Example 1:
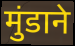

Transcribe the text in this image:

मुंडाने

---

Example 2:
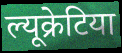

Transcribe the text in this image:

ल्यूक्रेटिया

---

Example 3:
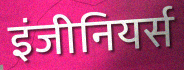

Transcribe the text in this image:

इंजीनियर्स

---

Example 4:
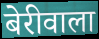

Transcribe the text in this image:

बेरीवाला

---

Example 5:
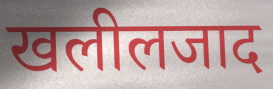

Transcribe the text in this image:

खलीलजाद